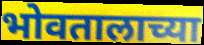
भोवतालाच्या